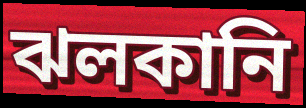
ঝলকানি